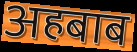
अहबाब